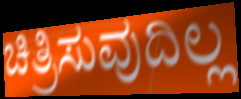
ಚಿತ್ರಿಸುವುದಿಲ್ಲ